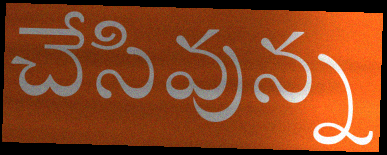
చేసివున్న